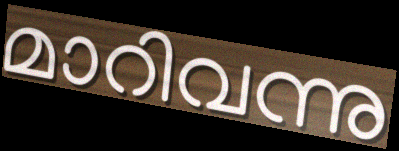
മാറിവന്നു